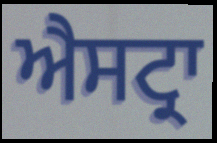
ਐਸਟ੍ਰਾ